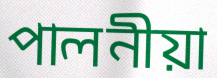
পালনীয়া